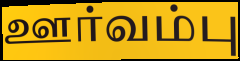
ஊர்வம்பு